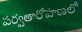
పర్వతారోహణలో